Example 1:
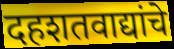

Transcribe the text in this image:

दहशतवाद्यांचे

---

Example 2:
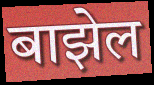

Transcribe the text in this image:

बाझेल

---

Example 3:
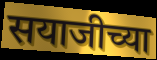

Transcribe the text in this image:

सयाजीच्या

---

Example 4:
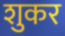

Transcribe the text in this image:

शुकर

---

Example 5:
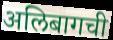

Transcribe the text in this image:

अलिबागची